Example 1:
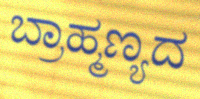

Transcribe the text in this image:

ಬ್ರಾಹ್ಮಣ್ಯದ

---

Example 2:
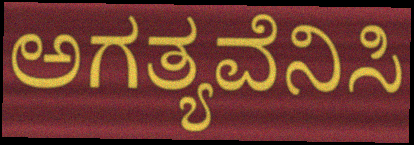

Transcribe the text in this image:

ಅಗತ್ಯವೆನಿಸಿ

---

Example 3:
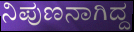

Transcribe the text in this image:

ನಿಪುಣನಾಗಿದ್ದ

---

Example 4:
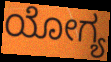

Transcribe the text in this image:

ಯೋಗ್ಯ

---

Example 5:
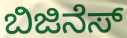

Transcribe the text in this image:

ಬಿಜಿನೆಸ್